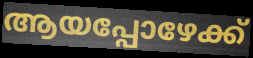
ആയപ്പോഴേക്ക്